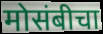
मोसंबीचा